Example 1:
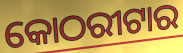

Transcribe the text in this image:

କୋଠରୀଟାର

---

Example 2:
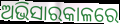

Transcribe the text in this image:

ଅଭିସାରକାଳରେ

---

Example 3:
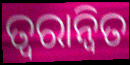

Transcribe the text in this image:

ତ୍ୱରାନ୍ଵିତ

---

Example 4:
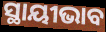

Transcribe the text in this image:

ସ୍ଥାୟୀଭାବ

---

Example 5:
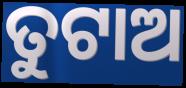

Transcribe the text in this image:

ତୁଟାଅ